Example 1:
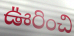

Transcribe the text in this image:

ఊరించి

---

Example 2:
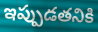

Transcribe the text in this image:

ఇప్పుడతనికి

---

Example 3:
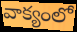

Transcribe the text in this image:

వాక్యంలో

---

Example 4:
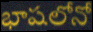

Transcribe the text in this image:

భాషలోనో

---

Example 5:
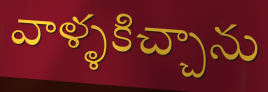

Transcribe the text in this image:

వాళ్ళకిచ్చాను